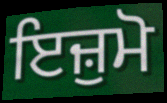
ਇਜ਼ੁਮੋ